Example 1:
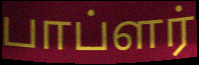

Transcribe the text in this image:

பாப்ளர்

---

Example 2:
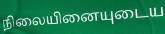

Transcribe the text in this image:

நிலையினையுடைய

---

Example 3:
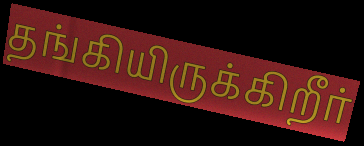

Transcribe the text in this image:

தங்கியிருக்கிறீர்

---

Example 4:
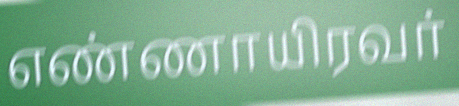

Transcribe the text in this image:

எண்ணாயிரவர்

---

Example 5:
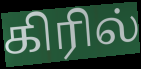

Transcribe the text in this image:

கிரில்